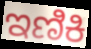
ಇಣಿಕಿ